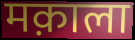
मक़ाला